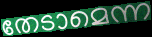
തേടാമെന്ന